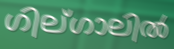
ഗില്ഗാലിൽ